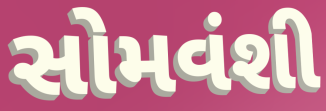
સોમવંશી